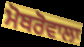
ਮੋਥਰੋਵਾਲਾ